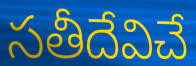
సతీదేవిచే